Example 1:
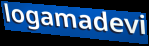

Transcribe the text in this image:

logamadevi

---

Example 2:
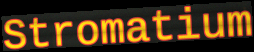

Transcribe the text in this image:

Stromatium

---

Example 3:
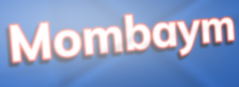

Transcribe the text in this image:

Mombaym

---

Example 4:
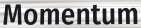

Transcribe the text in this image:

Momentum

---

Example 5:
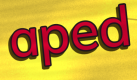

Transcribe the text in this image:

aped